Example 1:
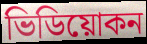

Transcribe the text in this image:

ভিডিয়োকন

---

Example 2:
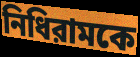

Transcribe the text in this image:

নিধিরামকে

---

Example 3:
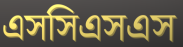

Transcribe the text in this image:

এসসিএসএস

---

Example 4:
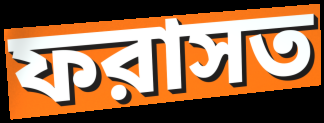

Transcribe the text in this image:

ফরাসত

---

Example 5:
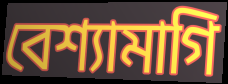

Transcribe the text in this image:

বেশ্যামাগি